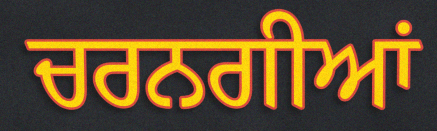
ਚਰਨਗੀਆਂ